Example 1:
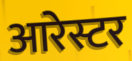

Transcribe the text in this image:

आरेस्टर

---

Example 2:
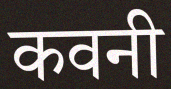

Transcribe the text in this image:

कवनी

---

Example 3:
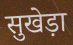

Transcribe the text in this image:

सुखेड़ा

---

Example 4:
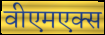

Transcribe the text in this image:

वीएमएक्स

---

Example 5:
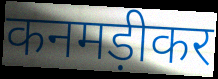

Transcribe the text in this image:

कनमड़ीकर